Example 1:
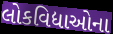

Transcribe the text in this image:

લોકવિદ્યાઓના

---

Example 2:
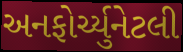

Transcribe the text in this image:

અનફોર્ચ્યુનેટલી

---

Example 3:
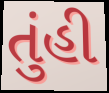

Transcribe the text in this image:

તુંહી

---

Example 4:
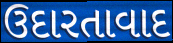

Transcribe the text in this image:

ઉદારતાવાદ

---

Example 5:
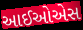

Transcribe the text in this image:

આઈઓએસ